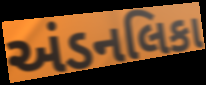
અંડનલિકા